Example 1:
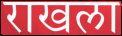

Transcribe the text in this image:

राखला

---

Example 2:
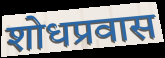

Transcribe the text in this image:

शोधप्रवास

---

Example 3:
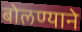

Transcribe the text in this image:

बोलण्याने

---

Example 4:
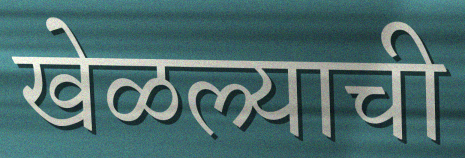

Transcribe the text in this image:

खेळल्याची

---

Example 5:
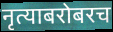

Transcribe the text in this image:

नृत्याबरोबरच